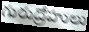
గురుద్రోహులు